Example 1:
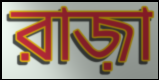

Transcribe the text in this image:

রাজ়া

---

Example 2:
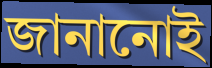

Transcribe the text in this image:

জানানোই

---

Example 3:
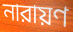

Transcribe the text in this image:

নারায়ণ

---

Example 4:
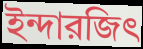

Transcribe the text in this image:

ইন্দারজিৎ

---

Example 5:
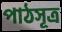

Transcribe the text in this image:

পাঠসূত্র